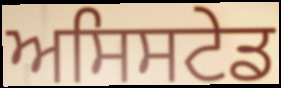
ਅਸਿਸਟੇਡ